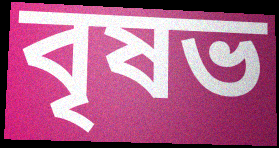
বৃষভ